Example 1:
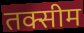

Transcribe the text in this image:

तक्सीम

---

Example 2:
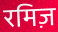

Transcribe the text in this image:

रमिज़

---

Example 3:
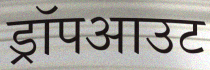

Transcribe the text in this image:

ड्रॉपआउट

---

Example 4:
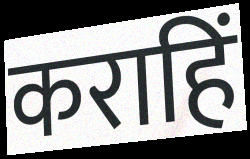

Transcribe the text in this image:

कराहिं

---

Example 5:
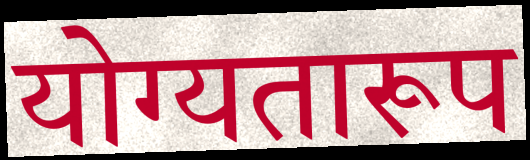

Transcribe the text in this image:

योग्यतारूप